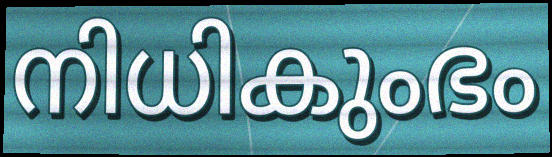
നിധികുംഭം